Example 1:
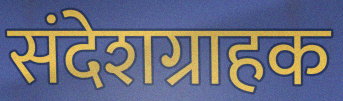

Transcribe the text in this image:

संदेशग्राहक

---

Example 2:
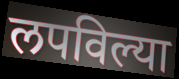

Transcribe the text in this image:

लपविल्या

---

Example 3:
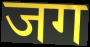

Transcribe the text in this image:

जग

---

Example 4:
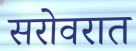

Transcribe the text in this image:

सरोवरात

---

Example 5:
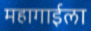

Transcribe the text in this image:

महागाईला